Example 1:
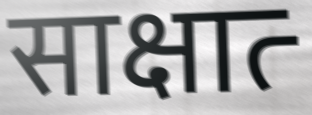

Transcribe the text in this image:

साक्षात्‍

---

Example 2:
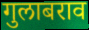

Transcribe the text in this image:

गुलाबराव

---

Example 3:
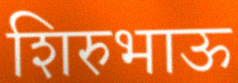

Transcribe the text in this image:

शिरुभाऊ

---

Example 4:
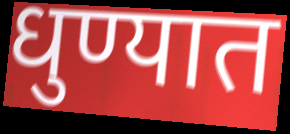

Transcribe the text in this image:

धुण्यात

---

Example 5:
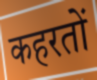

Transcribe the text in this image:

कहरतों